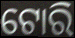
ଟୋରି